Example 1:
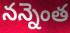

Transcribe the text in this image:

నన్నెంత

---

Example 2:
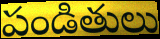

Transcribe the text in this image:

పండితులు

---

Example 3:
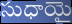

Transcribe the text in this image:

సుధాయై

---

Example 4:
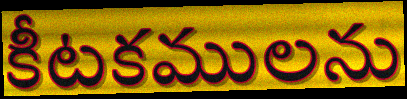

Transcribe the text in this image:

కీటకములను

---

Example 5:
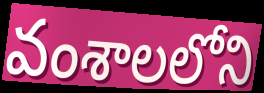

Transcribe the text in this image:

వంశాలలోని